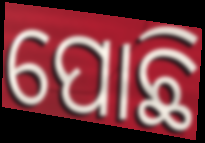
ପୋଛି